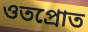
ওতপ্রোত